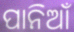
ପାନିଆଁ